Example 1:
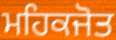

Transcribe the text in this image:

ਮਹਿਕਜੋਤ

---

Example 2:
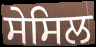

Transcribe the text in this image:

ਸੇਸਿਲ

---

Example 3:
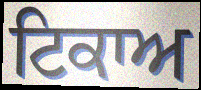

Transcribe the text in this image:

ਟਿਕਾਅ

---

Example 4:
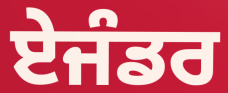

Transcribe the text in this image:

ਏਜੰਡਰ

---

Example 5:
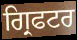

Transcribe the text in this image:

ਗ੍ਰਿਫਟਰ